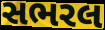
સભરલ